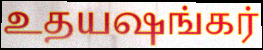
உதயஷங்கர்